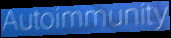
Autoimmunity